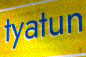
tyatun